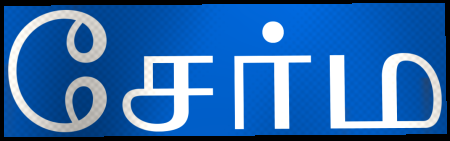
சேர்ம